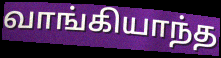
வாங்கியாந்த